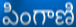
పింగాణి